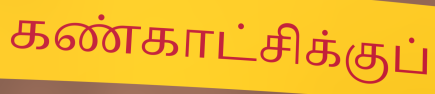
கண்காட்சிக்குப்